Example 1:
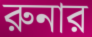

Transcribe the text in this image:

রুনার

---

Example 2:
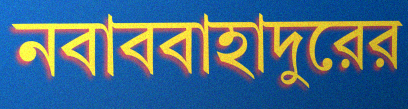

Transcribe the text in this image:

নবাববাহাদুরের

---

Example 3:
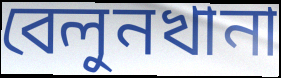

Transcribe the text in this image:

বেলুনখানা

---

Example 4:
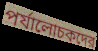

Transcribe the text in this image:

পর্যালোচকদের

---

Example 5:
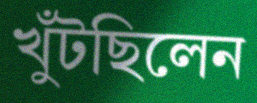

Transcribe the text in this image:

খুঁটছিলেন